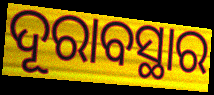
ଦୂରାବସ୍ଥାର